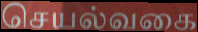
செயல்வகை